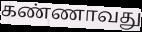
கண்ணாவது